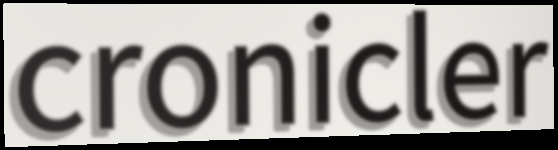
cronicler